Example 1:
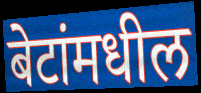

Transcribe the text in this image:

बेटांमधील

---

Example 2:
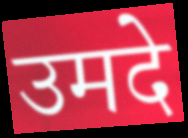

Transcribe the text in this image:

उमदे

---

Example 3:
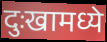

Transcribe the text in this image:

दुःखामध्ये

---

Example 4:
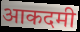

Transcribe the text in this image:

आकदमी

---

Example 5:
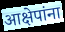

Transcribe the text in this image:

आक्षेपांना